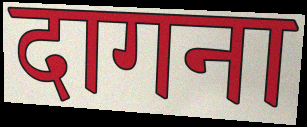
दागना